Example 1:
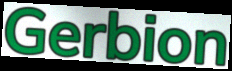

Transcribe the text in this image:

Gerbion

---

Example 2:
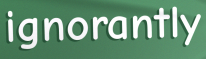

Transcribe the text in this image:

ignorantly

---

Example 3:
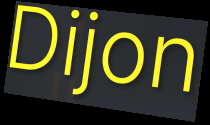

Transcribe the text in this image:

Dijon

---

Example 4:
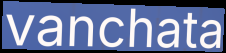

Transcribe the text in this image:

vanchata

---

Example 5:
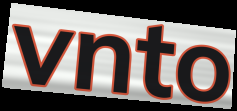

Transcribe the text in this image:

vnto